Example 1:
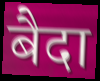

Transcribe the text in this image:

बैदा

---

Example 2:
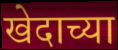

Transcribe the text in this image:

खेदाच्या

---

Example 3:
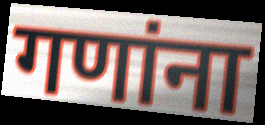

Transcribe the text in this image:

गणांना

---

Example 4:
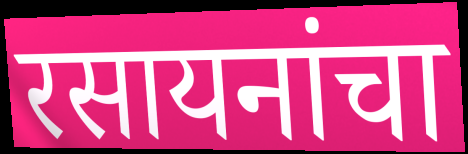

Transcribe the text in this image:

रसायनांचा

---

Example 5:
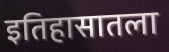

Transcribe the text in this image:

इतिहासातला